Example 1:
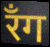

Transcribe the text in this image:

रॅंग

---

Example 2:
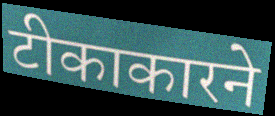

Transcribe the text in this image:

टीकाकारने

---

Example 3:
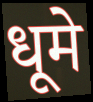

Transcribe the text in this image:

धूमे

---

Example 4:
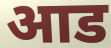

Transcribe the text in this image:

आड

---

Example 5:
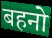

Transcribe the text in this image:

बहनो